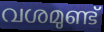
വശമുണ്ട്